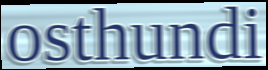
osthundi